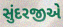
સુંદરજીએ